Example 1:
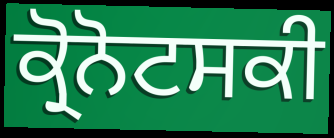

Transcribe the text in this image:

ਕ੍ਰੋਨੋਟਸਕੀ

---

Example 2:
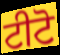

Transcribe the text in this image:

ਟੀਟੋ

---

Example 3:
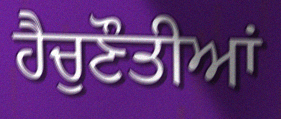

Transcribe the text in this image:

ਹੈਚੁਣੌਤੀਆਂ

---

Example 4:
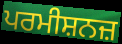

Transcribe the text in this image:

ਪਰਮੀਸ਼ਨਜ਼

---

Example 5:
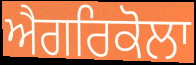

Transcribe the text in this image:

ਐਗਰਿਕੋਲਾ